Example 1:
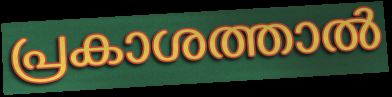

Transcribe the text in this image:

പ്രകാശത്താൽ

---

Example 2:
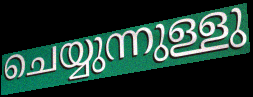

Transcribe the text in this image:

ചെയ്യുന്നുള്ളു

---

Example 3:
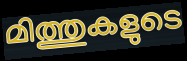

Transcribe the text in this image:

മിത്തുകളുടെ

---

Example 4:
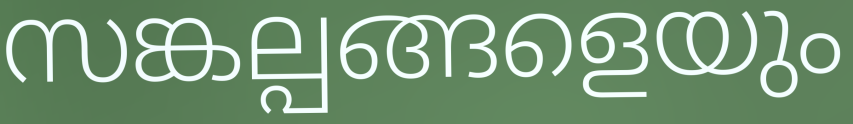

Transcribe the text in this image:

സങ്കല്പങ്ങളെയും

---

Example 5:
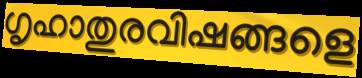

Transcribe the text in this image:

ഗൃഹാതുരവിഷങ്ങളെ